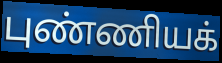
புண்ணியக்